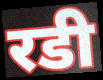
रडी